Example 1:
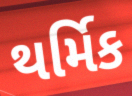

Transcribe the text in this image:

થર્મિક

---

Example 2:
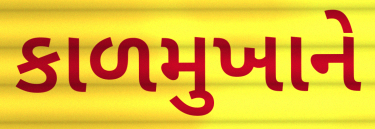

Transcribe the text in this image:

કાળમુખાને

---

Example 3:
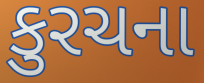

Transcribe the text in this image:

કુરચના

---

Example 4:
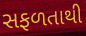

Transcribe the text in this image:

સફળતાથી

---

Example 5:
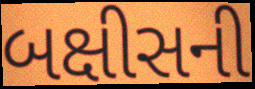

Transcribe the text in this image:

બક્ષીસની